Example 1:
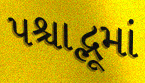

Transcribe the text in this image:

પશ્ચાદ્ભૂમાં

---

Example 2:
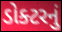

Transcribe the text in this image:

ડોક્ટરનું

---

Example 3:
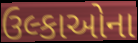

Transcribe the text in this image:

ઉલ્કાઓના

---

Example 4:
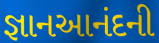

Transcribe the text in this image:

જ્ઞાનઆનંદની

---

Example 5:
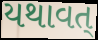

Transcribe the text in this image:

યથાવત્